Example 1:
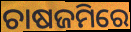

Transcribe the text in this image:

ଚାଷଜମିରେ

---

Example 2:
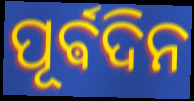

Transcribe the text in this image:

ପୂର୍ଵଦିନ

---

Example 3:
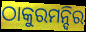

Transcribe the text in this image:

ଠାକୁରମନ୍ଦିର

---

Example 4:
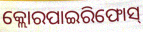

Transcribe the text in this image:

କ୍ଲୋରପାଇରିଫୋସ୍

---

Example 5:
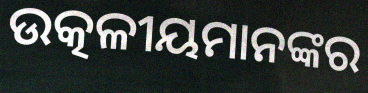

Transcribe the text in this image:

ଉତ୍କଳୀୟମାନଙ୍କର